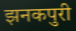
झनकपुरी